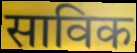
साविक